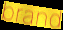
brand